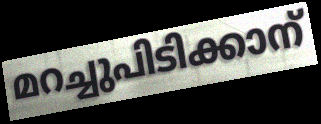
മറച്ചുപിടിക്കാന്